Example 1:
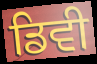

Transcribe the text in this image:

ਡਿਵੀ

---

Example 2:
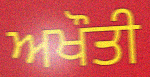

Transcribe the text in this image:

ਅਖੌਤੀ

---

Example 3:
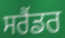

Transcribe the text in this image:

ਸਰੈਂਡਰ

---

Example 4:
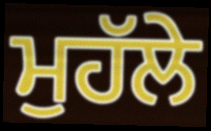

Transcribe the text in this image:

ਮੁਹੱਲੇ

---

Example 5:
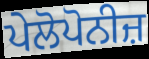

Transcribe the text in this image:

ਪੇਲੋਪੋਨੀਜ਼